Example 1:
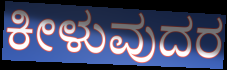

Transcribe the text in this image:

ಕೀಳುವುದರ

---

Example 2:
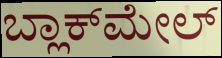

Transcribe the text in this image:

ಬ್ಲಾಕ್‌ಮೇಲ್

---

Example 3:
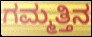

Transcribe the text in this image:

ಗಮ್ಮತ್ತಿನ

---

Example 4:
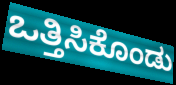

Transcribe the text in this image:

ಒತ್ತಿಸಿಕೊಂಡು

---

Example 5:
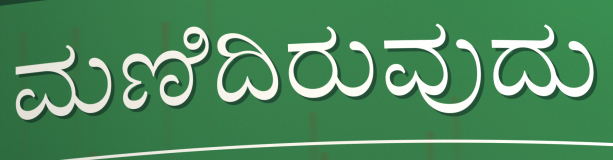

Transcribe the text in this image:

ಮಣಿದಿರುವುದು